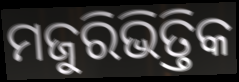
ମଜୁରିଭିତ୍ତିକ